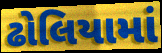
ઢોલિયામાં